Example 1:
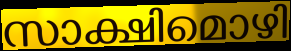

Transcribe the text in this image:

സാക്ഷിമൊഴി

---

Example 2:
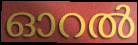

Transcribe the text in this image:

ഓറൽ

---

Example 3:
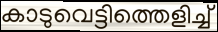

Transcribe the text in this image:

കാടുവെട്ടിത്തെളിച്ച്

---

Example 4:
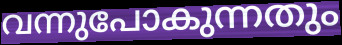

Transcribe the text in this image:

വന്നുപോകുന്നതും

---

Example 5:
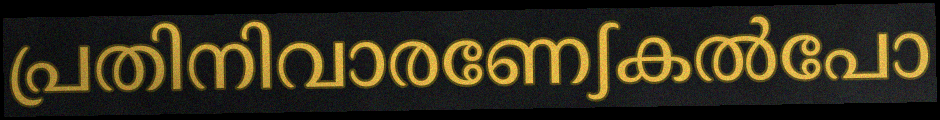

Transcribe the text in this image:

പ്രതിനിവാരണേഽകൽപോ